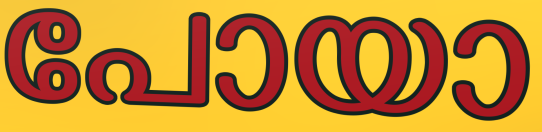
പോയാ